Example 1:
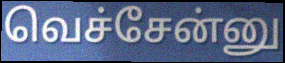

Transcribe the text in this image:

வெச்சேன்னு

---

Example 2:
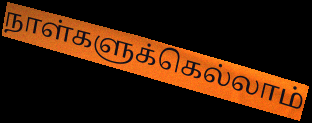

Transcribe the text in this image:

நாள்களுக்கெல்லாம்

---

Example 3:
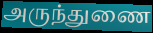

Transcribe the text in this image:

அருந்துணை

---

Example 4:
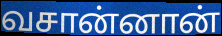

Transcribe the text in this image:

வசான்னான்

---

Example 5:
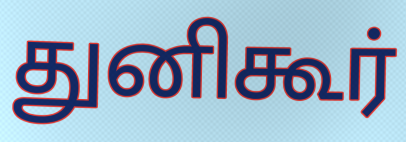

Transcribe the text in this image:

துனிகூர்